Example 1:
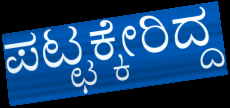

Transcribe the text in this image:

ಪಟ್ಟಕ್ಕೇರಿದ್ದ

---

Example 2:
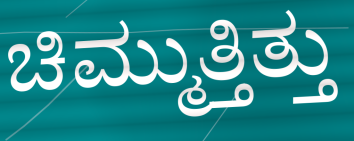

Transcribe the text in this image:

ಚಿಮ್ಮುತ್ತಿತ್ತು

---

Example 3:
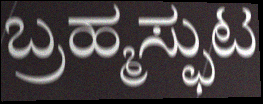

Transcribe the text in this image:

ಬ್ರಹ್ಮಸ್ಫುಟ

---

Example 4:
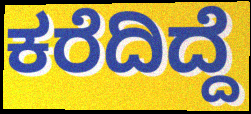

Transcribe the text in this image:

ಕರೆದಿದ್ದೆ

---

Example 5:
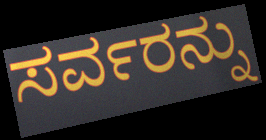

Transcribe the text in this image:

ಸರ್ವರನ್ನು